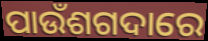
ପାଉଁଶଗଦାରେ